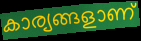
കാര്യങ്ങളാണ്